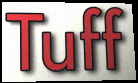
Tuff